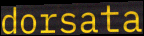
dorsata